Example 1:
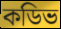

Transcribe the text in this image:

কডিভ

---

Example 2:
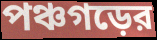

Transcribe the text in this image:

পঞ্চগড়ের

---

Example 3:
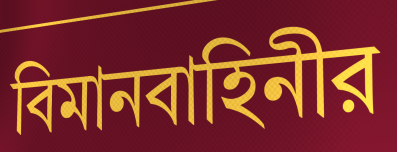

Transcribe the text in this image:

বিমানবাহিনীর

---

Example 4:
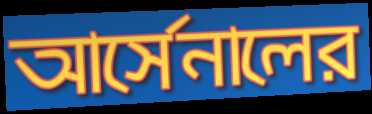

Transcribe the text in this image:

আর্সেনালের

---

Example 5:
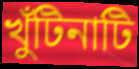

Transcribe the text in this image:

খুঁটিনাটি